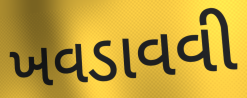
ખવડાવવી